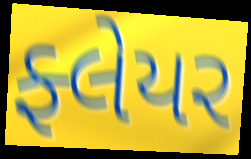
ફ્લેયર